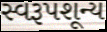
સ્વરૂપશૂન્ય